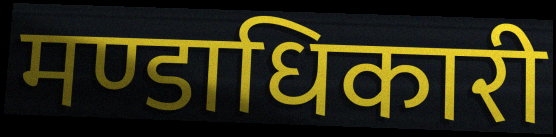
मण्डाधिकारी